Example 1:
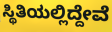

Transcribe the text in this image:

ಸ್ಥಿತಿಯಲ್ಲಿದ್ದೇವೆ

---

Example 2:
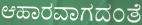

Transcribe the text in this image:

ಆಹಾರವಾಗದಂತೆ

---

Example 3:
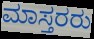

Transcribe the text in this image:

ಮಾಸ್ತರರು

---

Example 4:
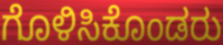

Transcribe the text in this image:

ಗೊಳಿಸಿಕೊಂಡರು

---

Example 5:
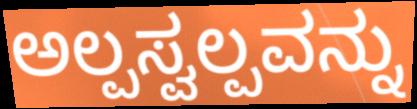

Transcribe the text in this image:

ಅಲ್ಪಸ್ವಲ್ಪವನ್ನು